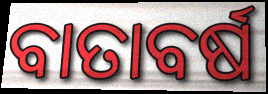
ବାତାବର୍ଷ